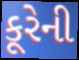
કૂરેની